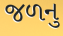
જળનુ